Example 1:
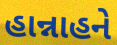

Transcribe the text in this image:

હાન્નાહને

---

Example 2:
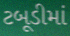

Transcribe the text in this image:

ટબૂડીમાં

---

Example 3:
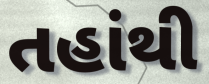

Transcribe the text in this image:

તહાંથી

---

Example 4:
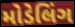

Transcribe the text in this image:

મોડેલિંગ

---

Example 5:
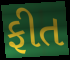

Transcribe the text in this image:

ફીત